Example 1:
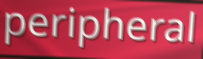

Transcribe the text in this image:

peripheral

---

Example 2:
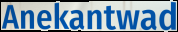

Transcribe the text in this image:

Anekantwad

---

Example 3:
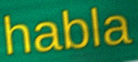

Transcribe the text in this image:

habla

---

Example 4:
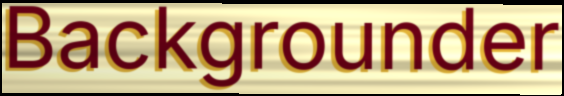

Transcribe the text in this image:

Backgrounder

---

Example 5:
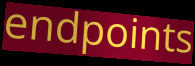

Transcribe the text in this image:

endpoints